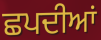
ਛਪਦੀਆਂ